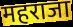
महराजा